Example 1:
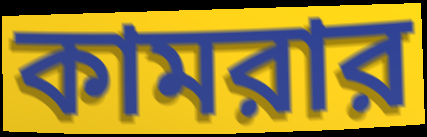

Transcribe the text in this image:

কামরার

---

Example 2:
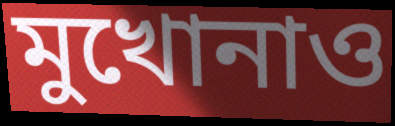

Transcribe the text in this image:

মুখোনাও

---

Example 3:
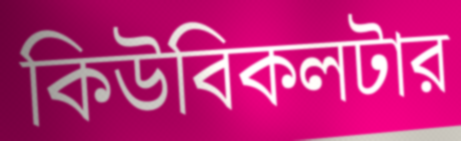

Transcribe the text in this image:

কিউবিকলটার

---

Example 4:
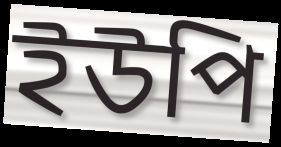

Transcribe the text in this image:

ইউপি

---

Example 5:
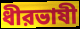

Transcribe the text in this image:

ধীরভাষী